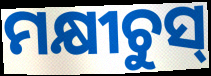
ମକ୍ଷୀଚୁସ୍